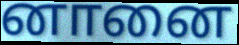
னானை